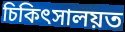
চিকিৎসালয়ত